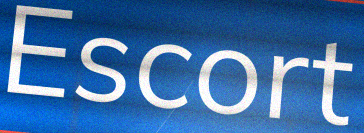
Escort